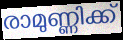
രാമുണ്ണിക്ക്